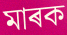
মাৰক